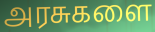
அரசுகளை